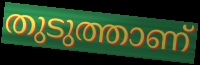
തുടുത്താണ്